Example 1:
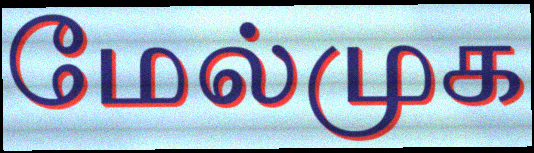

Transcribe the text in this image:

மேல்முக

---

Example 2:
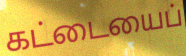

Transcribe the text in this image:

கட்டையைப்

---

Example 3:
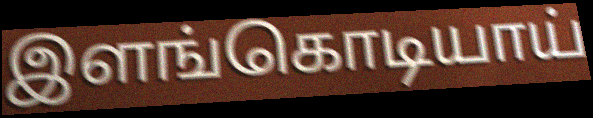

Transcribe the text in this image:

இளங்கொடியாய்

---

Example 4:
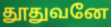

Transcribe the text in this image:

தூதுவனே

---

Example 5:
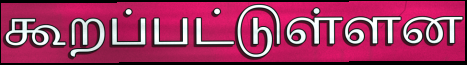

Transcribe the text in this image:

கூறப்பட்டுள்ளன